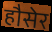
हौसेर